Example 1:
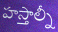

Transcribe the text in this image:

హస్తాల్నీ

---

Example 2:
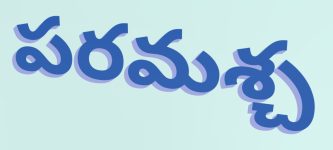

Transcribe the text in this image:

పరమశ్చ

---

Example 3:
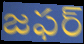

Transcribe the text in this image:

జఫర్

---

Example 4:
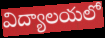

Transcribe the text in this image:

విద్యాలయలో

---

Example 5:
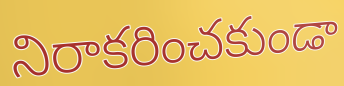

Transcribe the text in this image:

నిరాకరించకుండా